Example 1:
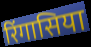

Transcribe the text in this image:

रिंगासिया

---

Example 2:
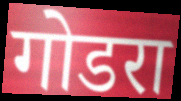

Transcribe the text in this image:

गोडरा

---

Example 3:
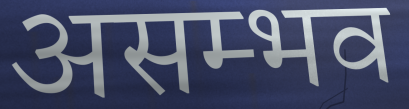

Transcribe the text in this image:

असम्भव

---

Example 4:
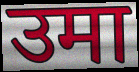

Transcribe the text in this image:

उमा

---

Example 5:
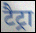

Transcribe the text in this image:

टैट्रा